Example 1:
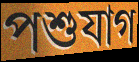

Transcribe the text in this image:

পশুযাগ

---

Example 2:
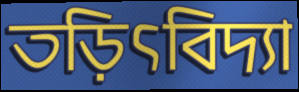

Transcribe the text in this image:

তড়িৎবিদ্যা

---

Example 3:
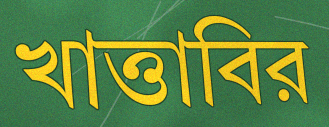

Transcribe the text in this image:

খাত্তাবির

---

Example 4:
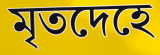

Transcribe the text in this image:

মৃতদেহে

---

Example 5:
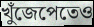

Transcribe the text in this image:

খুঁজেপেতেও